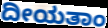
ದೀಯತಾಂ